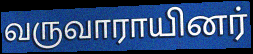
வருவாராயினர்